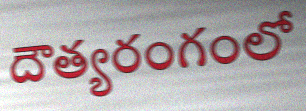
దౌత్యరంగంలో